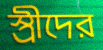
স্ত্রীদের